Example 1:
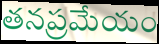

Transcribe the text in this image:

తనప్రమేయం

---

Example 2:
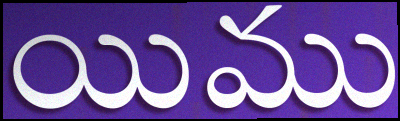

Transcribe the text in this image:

యిము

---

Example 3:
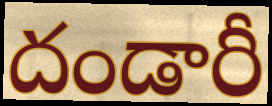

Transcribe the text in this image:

దండారీ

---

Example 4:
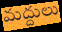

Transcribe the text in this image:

మద్దులు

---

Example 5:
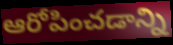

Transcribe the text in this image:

ఆరోపించడాన్ని